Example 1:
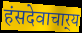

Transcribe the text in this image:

हंसदेवाचार्य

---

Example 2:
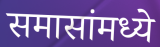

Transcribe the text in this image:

समासांमध्ये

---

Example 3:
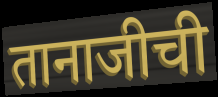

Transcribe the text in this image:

तानाजीची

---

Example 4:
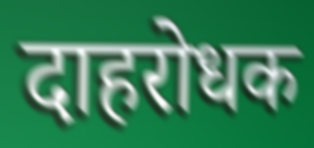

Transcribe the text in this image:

दाहरोधक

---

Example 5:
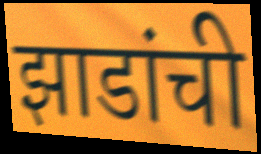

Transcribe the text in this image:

झाडांची